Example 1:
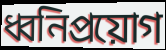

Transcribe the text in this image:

ধ্বনিপ্রয়োগ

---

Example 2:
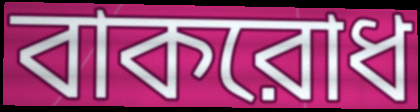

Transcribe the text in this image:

বাকরোধ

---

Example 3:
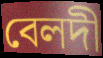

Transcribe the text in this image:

বেলদী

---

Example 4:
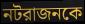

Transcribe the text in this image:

নটরাজনকে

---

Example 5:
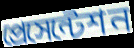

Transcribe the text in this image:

প্রেসেন্টেশন